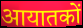
आयातकों